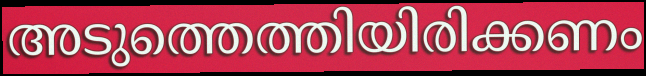
അടുത്തെത്തിയിരിക്കണം